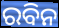
ରବିନ